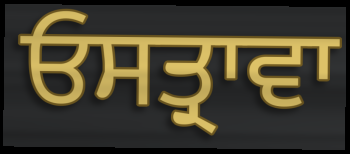
ਓਸਤ੍ਰਾਵਾ